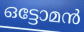
ഒട്ടോമൻ